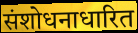
संशोधनाधारित